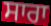
ਸਾਰਾ